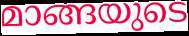
മാങ്ങയുടെ